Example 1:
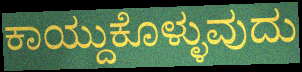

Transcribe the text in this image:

ಕಾಯ್ದುಕೊಳ್ಳುವುದು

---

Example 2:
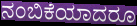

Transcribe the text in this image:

ನಂಬಿಕೆಯಾದರೂ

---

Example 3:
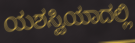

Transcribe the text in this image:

ಯಶಸ್ವಿಯಾದಲ್ಲಿ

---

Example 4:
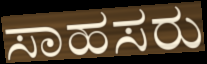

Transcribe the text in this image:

ಸಾಹಸರು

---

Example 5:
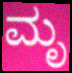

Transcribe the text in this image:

ಮೃ